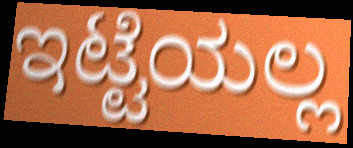
ಇಟ್ಟೆಯಲ್ಲ